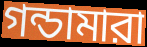
গন্ডামারা